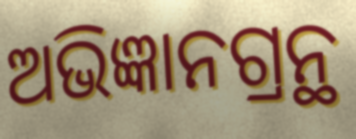
ଅଭିଜ୍ଞାନଗ୍ରନ୍ଥ